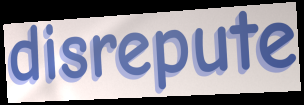
disrepute